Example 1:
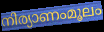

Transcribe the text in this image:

നിര്യാണംമൂലം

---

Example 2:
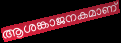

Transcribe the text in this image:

ആശങ്കാജനകമാണ്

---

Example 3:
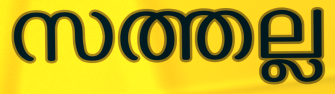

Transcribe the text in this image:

സത്തല്ല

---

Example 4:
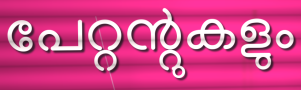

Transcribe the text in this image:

പേറ്റന്റുകളും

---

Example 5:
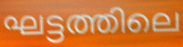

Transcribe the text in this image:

ഘട്ടത്തിലെ